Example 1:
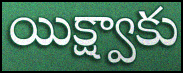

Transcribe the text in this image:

యిక్ష్వాకు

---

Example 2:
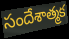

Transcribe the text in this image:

సందేశాత్మక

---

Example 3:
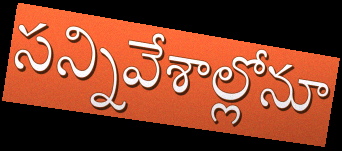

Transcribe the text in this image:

సన్నివేశాల్లోనూ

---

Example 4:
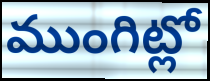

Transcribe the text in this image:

ముంగిట్లో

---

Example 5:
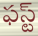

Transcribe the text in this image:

ఫస్ట్